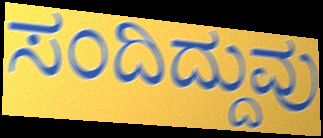
ಸಂದಿದ್ದುವು